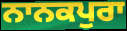
ਨਾਨਕਪੁਰਾ